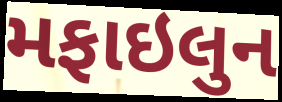
મફાઇલુન